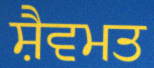
ਸ਼ੈਵਮਤ